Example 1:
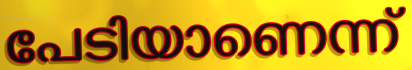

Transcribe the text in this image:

പേടിയാണെന്ന്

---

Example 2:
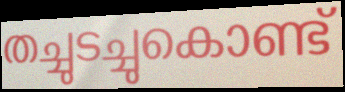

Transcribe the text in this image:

തച്ചുടച്ചുകൊണ്ട്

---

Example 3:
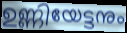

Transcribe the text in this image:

ഉണ്ണിയേട്ടനും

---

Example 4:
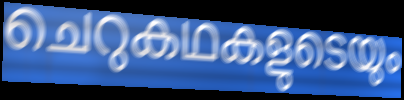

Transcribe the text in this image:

ചെറുകഥകളുടെയും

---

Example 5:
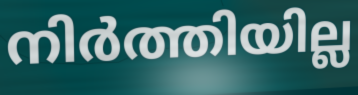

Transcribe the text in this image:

നിർത്തിയില്ല